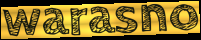
warasno